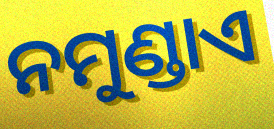
ନମୁଣ୍ଡାଏ